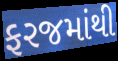
ફરજમાંથી